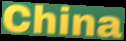
China